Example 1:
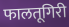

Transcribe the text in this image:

फालतूगिरी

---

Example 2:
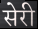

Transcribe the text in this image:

सेरी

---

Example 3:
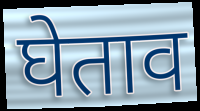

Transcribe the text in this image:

घेताव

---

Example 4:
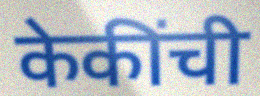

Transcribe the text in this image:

केकींची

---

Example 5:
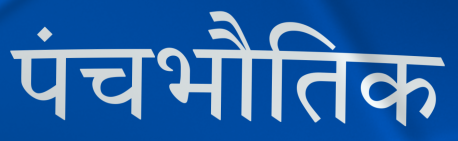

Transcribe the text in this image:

पंचभौतिक